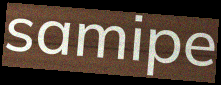
samipe